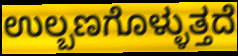
ಉಲ್ಬಣಗೊಳ್ಳುತ್ತದೆ